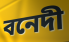
বনেদী